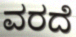
ವರದೆ